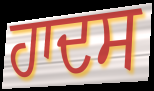
ਹਾਦਸ